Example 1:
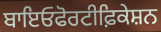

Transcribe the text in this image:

ਬਾਇਓਫੋਰਟੀਫ਼ਿਕੇਸ਼ਨ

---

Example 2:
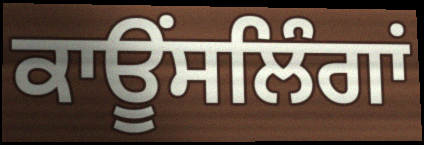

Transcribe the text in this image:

ਕਾਊਂਸਲਿੰਗਾਂ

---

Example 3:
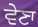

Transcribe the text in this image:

ਵੇਣਾ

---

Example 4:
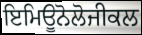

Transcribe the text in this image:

ਇਮਿਊਨੋਲੋਜੀਕਲ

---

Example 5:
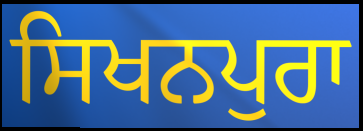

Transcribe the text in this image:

ਸਿਖਨਪੁਰਾ